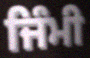
ਜਿੰਮੀ